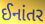
ઈનાંતર